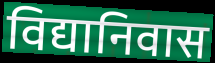
विद्यानिवास